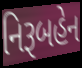
નિરૂબહેન